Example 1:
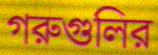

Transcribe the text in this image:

গরুগুলির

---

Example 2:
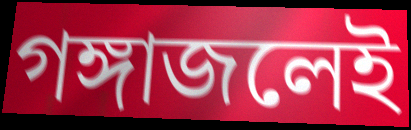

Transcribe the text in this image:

গঙ্গাজলেই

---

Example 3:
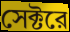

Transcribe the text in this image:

সেক্টরে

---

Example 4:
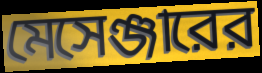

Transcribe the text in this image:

মেসেঞ্জারের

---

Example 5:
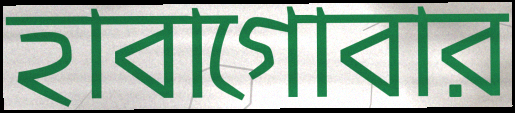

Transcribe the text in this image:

হাবাগোবার